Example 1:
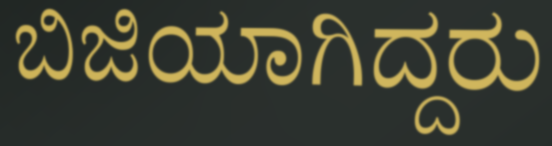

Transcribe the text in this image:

ಬಿಜಿಯಾಗಿದ್ದರು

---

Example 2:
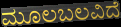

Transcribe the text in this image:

ಮೂಲಬಲವಿದೆ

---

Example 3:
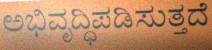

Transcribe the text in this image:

ಅಭಿವೃದ್ಧಿಪಡಿಸುತ್ತದೆ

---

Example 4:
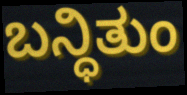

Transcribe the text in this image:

ಬನ್ಧಿತುಂ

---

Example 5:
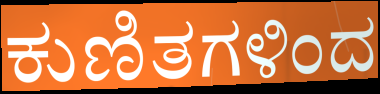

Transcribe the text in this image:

ಕುಣಿತಗಳಿಂದ